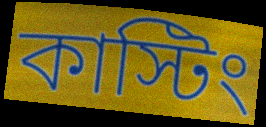
কাস্টিং